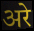
अरे